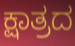
ಕ್ಷಾತ್ರದ